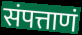
संपत्ताणं